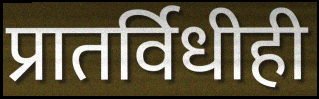
प्रातर्विधीही